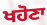
ਖਹੋਣਾ